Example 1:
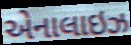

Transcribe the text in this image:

એનાલાઇઝ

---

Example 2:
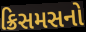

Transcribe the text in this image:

ક્રિસમસનો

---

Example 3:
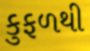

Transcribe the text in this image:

કુફળથી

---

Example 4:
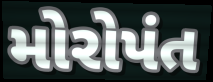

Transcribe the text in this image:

મોરોપંત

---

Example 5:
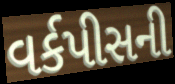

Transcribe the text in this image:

વર્કપીસની